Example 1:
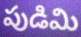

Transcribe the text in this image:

పుడిమి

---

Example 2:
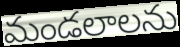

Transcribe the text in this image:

మండలాలను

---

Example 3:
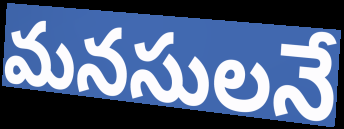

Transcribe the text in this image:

మనసులనే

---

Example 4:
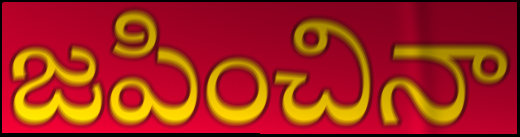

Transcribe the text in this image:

జపించినా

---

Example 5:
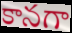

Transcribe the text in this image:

కానగా